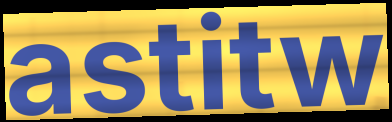
astitw